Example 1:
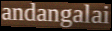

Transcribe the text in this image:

andangalai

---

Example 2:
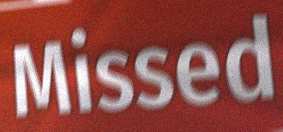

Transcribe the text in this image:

Missed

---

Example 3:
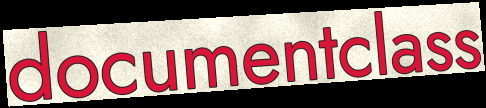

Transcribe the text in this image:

documentclass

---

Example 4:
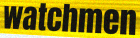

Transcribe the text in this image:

watchmen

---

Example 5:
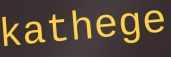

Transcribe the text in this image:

kathege